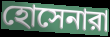
হোসেনারা